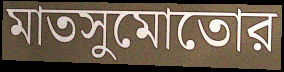
মাতসুমোতোর